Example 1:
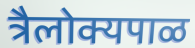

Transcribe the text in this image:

त्रैलोक्यपाळ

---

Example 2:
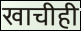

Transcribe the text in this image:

खाचीही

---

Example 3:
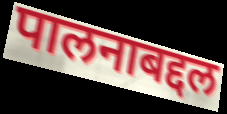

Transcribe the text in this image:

पालनाबद्दल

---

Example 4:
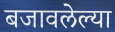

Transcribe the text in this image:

बजावलेल्या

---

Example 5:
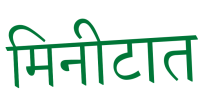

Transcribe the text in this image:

मिनीटात